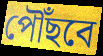
পৌঁছবে